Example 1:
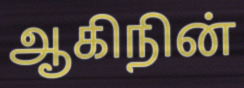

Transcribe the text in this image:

ஆகிநின்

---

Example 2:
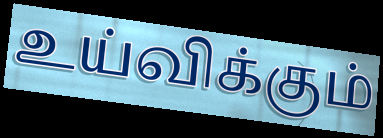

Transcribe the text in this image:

உய்விக்கும்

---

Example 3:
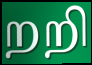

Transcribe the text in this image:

றறி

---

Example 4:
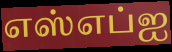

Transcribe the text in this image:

எஸ்எப்ஐ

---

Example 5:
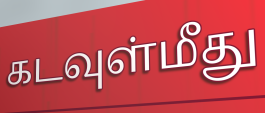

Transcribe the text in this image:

கடவுள்மீது